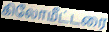
கிலோமீட்டரை